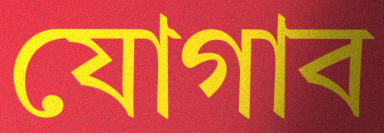
যোগাব